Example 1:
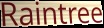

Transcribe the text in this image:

Raintree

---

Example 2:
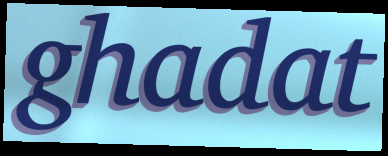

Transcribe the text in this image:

ghadat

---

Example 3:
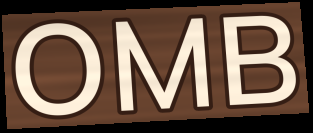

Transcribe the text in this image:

OMB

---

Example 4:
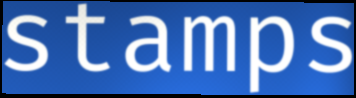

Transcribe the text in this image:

stamps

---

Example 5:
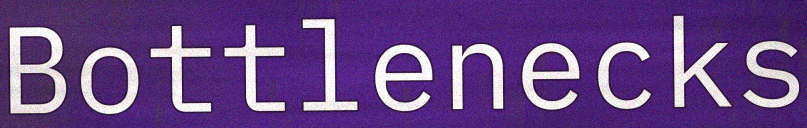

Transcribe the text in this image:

Bottlenecks